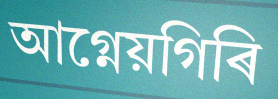
আগ্নেয়গিৰি